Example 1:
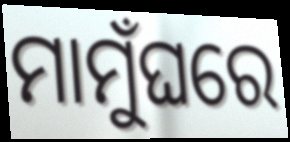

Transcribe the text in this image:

ମାମୁଁଘରେ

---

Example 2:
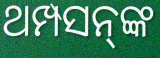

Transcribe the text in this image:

ଥମ୍ପସନ୍‌ଙ୍କ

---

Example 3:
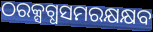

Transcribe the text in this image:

ଠରକ୍ସଗ୍ଧସମରକ୍ଷକ୍ଷବ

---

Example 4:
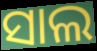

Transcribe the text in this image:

ସାଲ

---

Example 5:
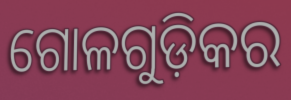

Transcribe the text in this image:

ଗୋଳଗୁଡ଼ିକର